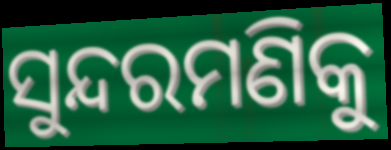
ସୁନ୍ଦରମଣିକୁ